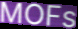
MOFs